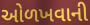
ઓળખવાની